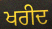
ਖਰੀਦ